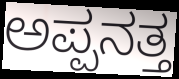
ಅಪ್ಪನತ್ತ